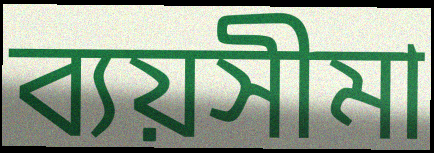
ব্যয়সীমা